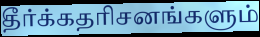
தீர்க்கதரிசனங்களும்